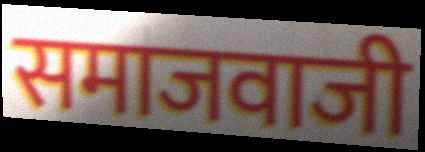
समाजवाजी